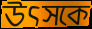
উৎসকে